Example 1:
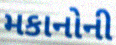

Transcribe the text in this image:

મકાનોની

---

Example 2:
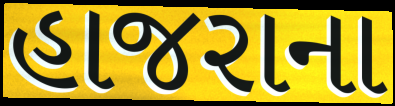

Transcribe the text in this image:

હાજરાના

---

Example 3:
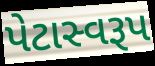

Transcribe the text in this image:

પેટાસ્વરૂપ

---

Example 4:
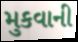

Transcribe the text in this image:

મુકવાની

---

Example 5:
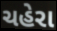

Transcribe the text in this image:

ચહેરા